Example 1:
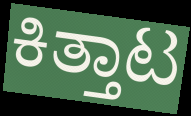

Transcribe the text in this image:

ಕಿತ್ತಾಟ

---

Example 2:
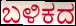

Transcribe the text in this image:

ಬಳಿಕದ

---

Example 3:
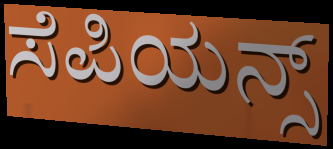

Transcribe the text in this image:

ಸೆಪಿಯನ್ಸ್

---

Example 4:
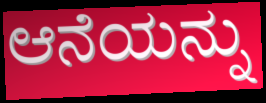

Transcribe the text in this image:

ಆನೆಯನ್ನು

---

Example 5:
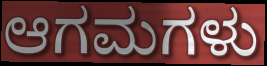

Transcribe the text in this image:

ಆಗಮಗಳು